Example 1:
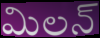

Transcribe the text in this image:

మిలన్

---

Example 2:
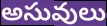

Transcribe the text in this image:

అసువులు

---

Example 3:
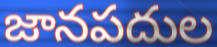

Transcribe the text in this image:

జానపదుల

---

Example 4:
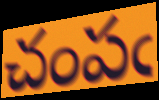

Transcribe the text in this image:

చంపఁ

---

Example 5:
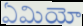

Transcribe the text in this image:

ఏమియో